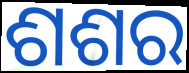
ଶଶର